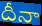
దీనా